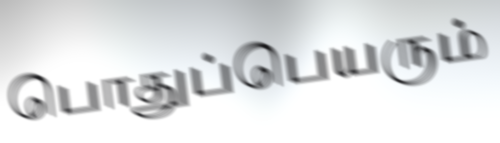
பொதுப்பெயரும்